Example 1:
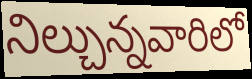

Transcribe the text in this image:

నిల్చున్నవారిలో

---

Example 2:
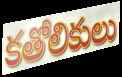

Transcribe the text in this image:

కతోలికులు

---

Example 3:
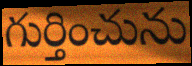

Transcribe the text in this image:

గుర్తించును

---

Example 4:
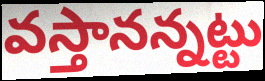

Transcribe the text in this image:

వస్తానన్నట్టు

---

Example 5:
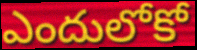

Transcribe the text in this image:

ఎందులోకో